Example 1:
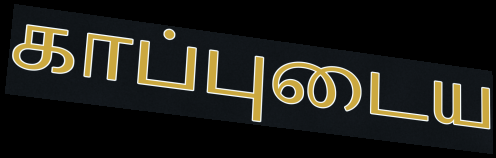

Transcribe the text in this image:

காப்புடைய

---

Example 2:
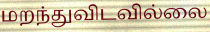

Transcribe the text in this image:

மறந்துவிடவில்லை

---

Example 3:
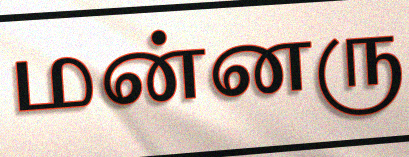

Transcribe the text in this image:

மன்னரு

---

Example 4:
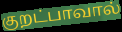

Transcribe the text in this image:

குறட்பாவால்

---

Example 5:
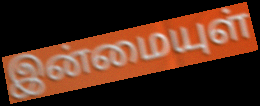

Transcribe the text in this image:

இன்மையுள்